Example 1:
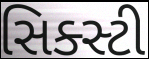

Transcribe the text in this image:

સિક્સ્ટી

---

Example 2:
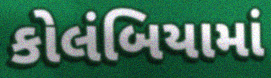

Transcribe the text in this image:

કોલંબિયામાં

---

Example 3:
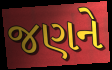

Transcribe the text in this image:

જણને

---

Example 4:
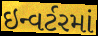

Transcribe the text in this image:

ઇન્વર્ટરમાં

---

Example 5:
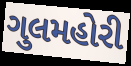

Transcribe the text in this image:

ગુલમહોરી